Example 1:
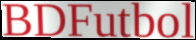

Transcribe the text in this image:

BDFutbol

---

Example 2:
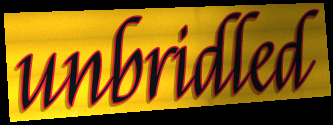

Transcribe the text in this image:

unbridled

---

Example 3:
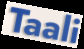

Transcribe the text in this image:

Taali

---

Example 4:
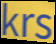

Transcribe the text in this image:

krs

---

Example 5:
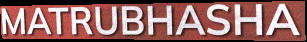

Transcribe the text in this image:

MATRUBHASHA